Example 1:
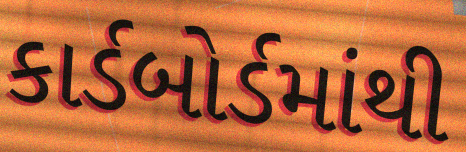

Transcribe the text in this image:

કાર્ડબોર્ડમાંથી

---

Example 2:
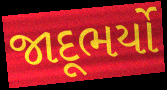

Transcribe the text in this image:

જાદૂભર્યો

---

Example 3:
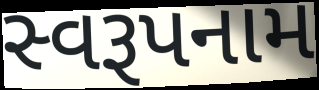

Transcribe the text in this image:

સ્વરૂપનામ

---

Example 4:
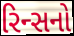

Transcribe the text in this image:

રિન્સનો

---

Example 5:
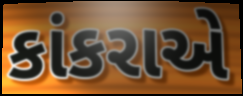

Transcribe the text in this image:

કાંકરાએ